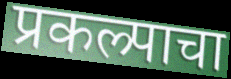
प्रकल्पाचा